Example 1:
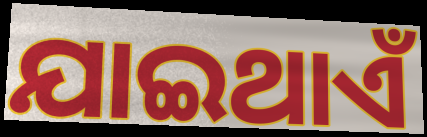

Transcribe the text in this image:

ଯାଇଥାଏଁ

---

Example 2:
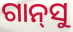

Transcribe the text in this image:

ଗାନ୍‍ସୁ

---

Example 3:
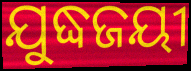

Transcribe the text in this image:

ଯୁଦ୍ଧଜୟୀ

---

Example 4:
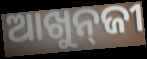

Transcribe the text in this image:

ଆଖୁନ୍‌ଜୀ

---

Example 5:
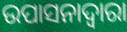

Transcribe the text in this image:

ଉପାସନାଦ୍ଵାରା